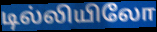
டில்லியிலோ